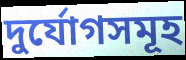
দুর্যোগসমূহ